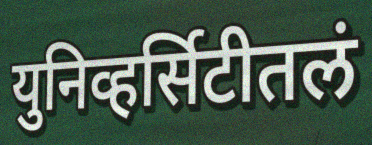
युनिव्हर्सिटीतलं